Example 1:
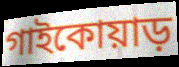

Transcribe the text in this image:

গাইকোয়াড়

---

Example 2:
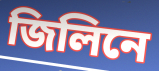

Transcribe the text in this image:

জিলিনে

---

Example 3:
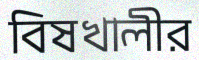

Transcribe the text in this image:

বিষখালীর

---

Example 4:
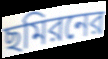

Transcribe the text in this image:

ছমিরনের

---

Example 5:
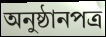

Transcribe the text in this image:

অনুষ্ঠানপত্র